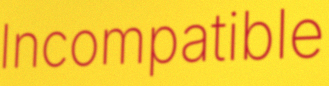
Incompatible